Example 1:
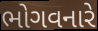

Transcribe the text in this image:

ભોગવનારે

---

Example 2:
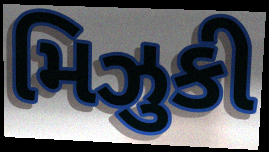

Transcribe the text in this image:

મિઝુકી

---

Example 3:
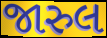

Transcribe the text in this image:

જારુલ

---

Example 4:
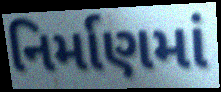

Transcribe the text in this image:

નિર્માણમાં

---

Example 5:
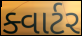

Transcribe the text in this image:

ક્વાર્ટર